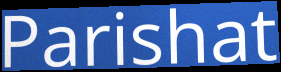
Parishat